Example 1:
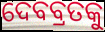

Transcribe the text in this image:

ଦେବବ୍ରତକୁ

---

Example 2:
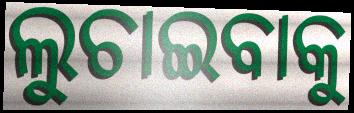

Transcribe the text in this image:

ଲୁଚାଇବାକୁ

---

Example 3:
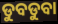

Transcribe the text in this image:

ଡୁବଡୁବା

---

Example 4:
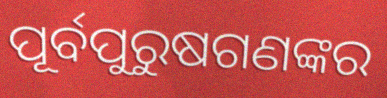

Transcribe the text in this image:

ପୂର୍ବପୁରୁଷଗଣଙ୍କର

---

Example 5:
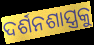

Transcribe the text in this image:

ଦର୍ଶନଶାସ୍ତ୍ରକୁ